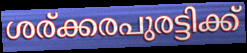
ശര്ക്കരപുരട്ടിക്ക്